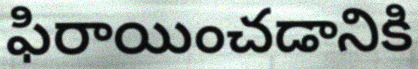
ఫిరాయించడానికి